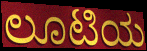
ಲೂಟಿಯ